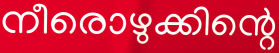
നീരൊഴുക്കിന്റെ